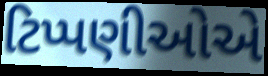
ટિપ્પણીઓએ